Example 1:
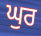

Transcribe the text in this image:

ਘੁਰ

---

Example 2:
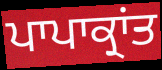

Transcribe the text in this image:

ਪਾਪਾਕ੍ਰਾਂਤ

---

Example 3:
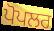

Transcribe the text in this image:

ਪੋਪਲਰ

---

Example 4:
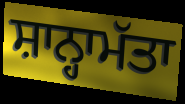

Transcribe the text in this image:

ਸ਼ਾਨ੍ਹਾਮੱਤਾ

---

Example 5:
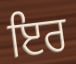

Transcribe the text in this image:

ਇਰ